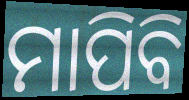
ମାପିବି